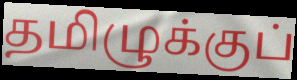
தமிழுக்குப்